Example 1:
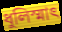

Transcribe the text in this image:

ধুলিস্মাৎ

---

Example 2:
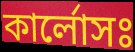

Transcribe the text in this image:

কার্লোসঃ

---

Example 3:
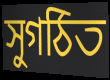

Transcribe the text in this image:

সুগঠিত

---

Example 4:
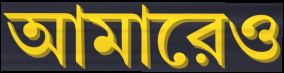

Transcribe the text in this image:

আমারেও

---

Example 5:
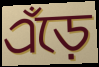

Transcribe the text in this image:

এঁড়ে